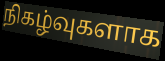
நிகழ்வுகளாக